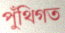
পুঁথিগত